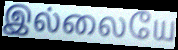
இல்லையே